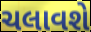
ચલાવશે